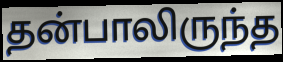
தன்பாலிருந்த